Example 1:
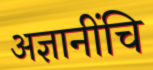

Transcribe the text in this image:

अज्ञानींचि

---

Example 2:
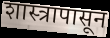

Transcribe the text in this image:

शास्त्रापासून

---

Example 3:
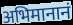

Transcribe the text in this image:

अभिमानानं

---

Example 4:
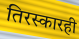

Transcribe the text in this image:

तिरस्कारही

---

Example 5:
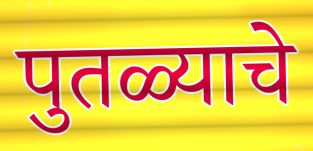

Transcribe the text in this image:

पुतळ्याचे